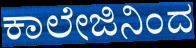
ಕಾಲೇಜಿನಿಂದ